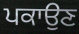
ਪਕਾਉਣ